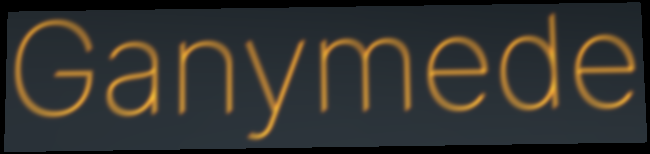
Ganymede